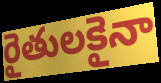
రైతులకైనా